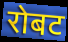
रोबट